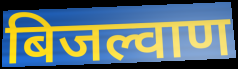
बिजल्वाण